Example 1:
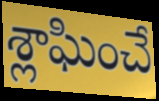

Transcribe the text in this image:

శ్లాఘించే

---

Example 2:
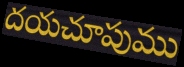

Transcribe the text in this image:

దయచూపుము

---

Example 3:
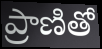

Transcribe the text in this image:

ప్రాణితో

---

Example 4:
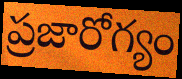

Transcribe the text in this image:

ప్రజారోగ్యం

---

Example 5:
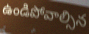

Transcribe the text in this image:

ఉండిపోవాల్సిన